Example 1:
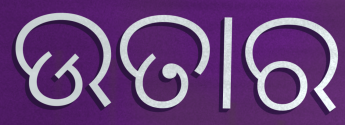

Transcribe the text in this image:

ଉତାର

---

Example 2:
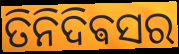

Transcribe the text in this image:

ତିନିଦିଵସର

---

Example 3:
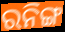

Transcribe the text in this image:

ରନିଙ୍ଗ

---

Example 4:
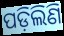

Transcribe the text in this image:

ପଡ଼ିଲିଣି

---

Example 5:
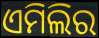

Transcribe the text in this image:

ଏମିଲିର